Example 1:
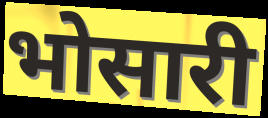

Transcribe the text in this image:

भोसारी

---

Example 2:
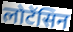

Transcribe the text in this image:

लोटेंसिन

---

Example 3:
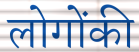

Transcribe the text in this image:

लोगोंकी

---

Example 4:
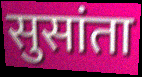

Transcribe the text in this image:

सुसांता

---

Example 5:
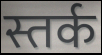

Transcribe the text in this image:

स्तर्क